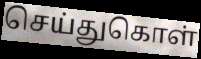
செய்துகொள்